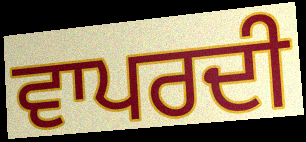
ਵਾਪਰਦੀ